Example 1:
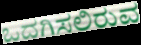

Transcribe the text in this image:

ಒದಗಿಸಲಿರುವ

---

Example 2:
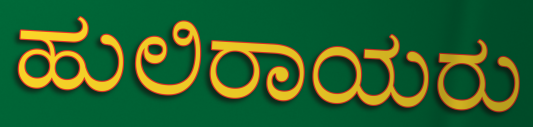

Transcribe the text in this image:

ಹುಲಿರಾಯರು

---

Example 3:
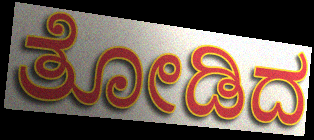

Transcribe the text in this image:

ತೋಡಿದ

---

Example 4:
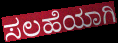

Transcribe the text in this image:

ಸಲಹೆಯಾಗಿ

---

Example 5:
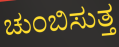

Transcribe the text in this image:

ಚುಂಬಿಸುತ್ತ